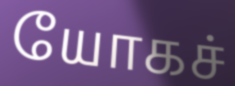
யோகச்